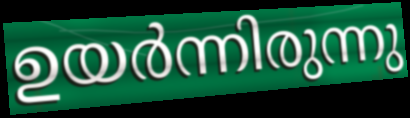
ഉയർന്നിരുന്നു